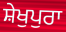
ਸ਼ੇਖੁਪੁਰਾ